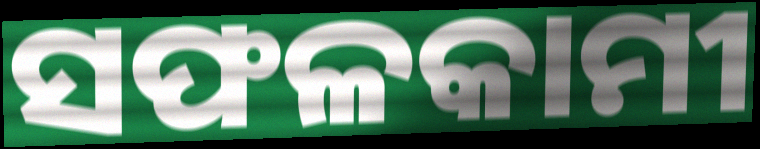
ସଫଳକାମୀ